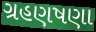
ગ્રહણષણા